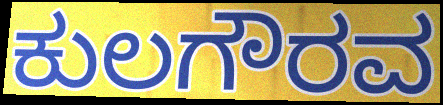
ಕುಲಗೌರವ